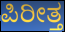
ಪಿರೀತ್ತ